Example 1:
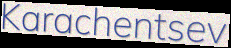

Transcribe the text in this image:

Karachentsev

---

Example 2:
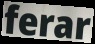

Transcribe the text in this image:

ferar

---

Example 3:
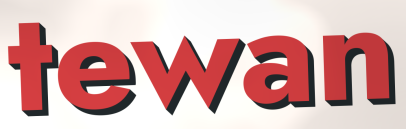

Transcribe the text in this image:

tewan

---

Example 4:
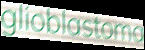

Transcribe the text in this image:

glioblastoma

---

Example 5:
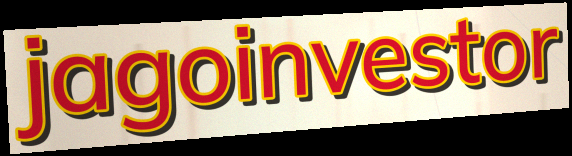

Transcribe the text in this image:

jagoinvestor